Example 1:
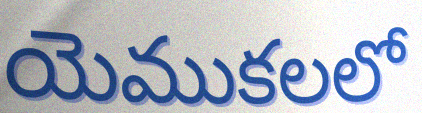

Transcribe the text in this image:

యెముకలలో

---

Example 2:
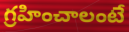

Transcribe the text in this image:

గ్రహించాలంటే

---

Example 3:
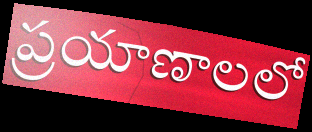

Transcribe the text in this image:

ప్రయాణాలలో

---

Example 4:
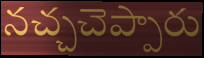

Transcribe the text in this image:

నచ్చచెప్పారు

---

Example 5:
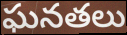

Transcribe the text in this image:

ఘనతలు